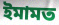
ইমামত